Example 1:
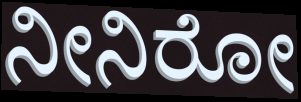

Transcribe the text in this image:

ನೀನಿರೋ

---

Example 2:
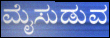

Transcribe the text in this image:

ಮೈಸುಡುವ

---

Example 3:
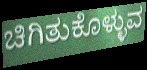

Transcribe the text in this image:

ಚಿಗಿತುಕೊಳ್ಳುವ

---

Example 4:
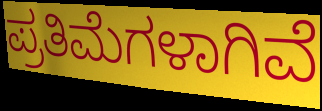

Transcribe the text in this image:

ಪ್ರತಿಮೆಗಳಾಗಿವೆ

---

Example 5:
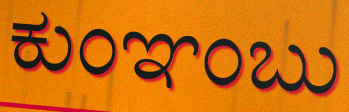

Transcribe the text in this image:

ಕುಂಞಂಬು